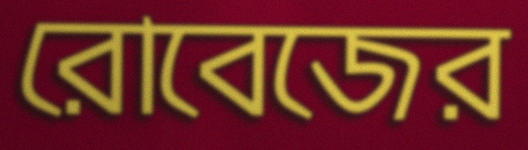
রোবেজের